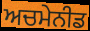
ਅਚਮੇਨੀਡ